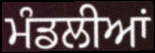
ਮੰਡਲੀਆਂ